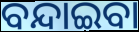
ବନ୍ଦାଇବା